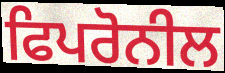
ਫਿਪਰੋਨੀਲ